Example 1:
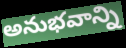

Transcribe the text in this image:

అనుభవాన్ని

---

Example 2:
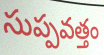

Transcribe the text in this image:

సుప్పవత్తం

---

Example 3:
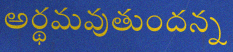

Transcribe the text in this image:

అర్థమవుతుందన్న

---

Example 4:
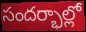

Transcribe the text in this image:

సందర్భాల్లో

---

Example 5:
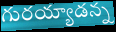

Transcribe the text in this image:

గురయ్యాడన్న